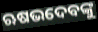
ଋଷଭଦେବଙ୍କୁ